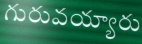
గురువయ్యారు